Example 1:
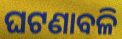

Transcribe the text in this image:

ଘଟଣାବଳି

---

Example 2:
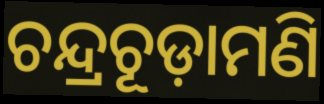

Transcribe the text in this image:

ଚନ୍ଦ୍ରଚୂଡ଼ାମଣି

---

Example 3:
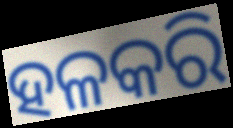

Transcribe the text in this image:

ହଳକରି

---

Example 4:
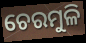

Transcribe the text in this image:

ଚେରମୁଳି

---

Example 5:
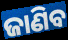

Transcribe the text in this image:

ଜାଣିବ